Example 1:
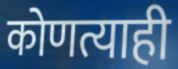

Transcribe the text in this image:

कोणत्याही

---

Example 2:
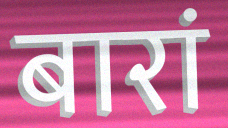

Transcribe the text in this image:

बारां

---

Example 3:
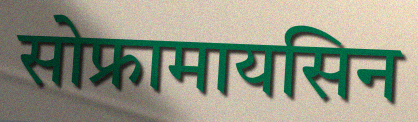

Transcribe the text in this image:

सोफ्रामायसिन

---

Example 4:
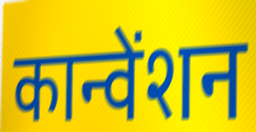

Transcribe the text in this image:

कान्वेंशन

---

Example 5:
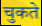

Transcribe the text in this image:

चुकते